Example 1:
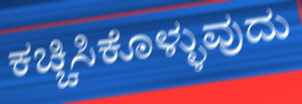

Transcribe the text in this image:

ಕಚ್ಚಿಸಿಕೊಳ್ಳುವುದು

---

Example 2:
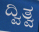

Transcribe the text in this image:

ದ್ವಿತ್ವ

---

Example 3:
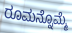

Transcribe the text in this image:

ರೂಮನ್ನೊಮ್ಮೆ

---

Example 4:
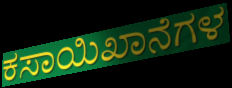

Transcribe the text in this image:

ಕಸಾಯಿಖಾನೆಗಳ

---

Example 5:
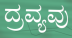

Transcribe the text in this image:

ದ್ರವ್ಯವು